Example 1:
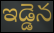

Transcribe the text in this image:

ఇడ్డెన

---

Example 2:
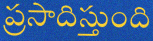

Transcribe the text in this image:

ప్రసాదిస్తుంది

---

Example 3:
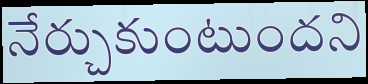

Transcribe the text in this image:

నేర్చుకుంటుందని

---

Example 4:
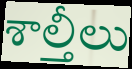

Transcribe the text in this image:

శాల్తీలు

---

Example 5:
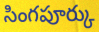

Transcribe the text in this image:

సింగపూర్కు